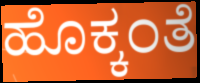
ಹೊಕ್ಕಂತೆ